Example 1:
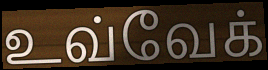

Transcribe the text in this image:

உவ்வேக்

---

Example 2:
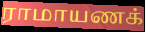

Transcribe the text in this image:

ராமாயணக்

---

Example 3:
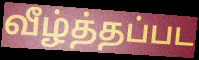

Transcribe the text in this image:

வீழ்த்தப்பட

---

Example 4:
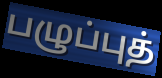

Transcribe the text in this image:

பழுப்புத்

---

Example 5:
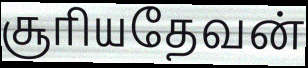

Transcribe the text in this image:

சூரியதேவன்